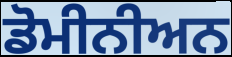
ਡੋਮੀਨੀਅਨ